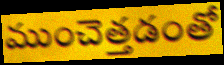
ముంచెత్తడంతో